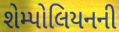
શેમ્પોલિયનની